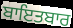
ਬਾਇਤਬਾਰ